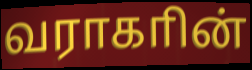
வராகரின்